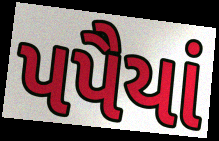
પપૈયાં